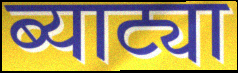
ब्याट्या